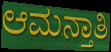
ಆಮನ್ತಾತಿ